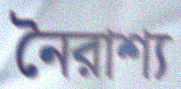
নৈরাশ্য